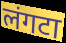
लंगटा